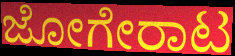
ಜೋಗೇರಾಟ